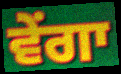
ਵੇਂਗਾ